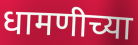
धामणीच्या